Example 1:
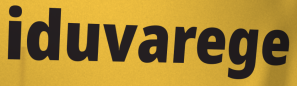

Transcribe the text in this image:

iduvarege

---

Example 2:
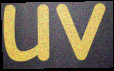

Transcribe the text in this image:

uv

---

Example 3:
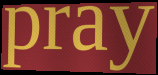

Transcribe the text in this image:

pray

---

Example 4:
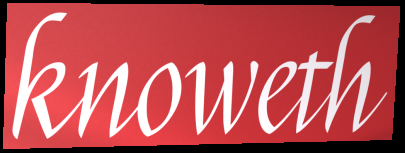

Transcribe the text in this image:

knoweth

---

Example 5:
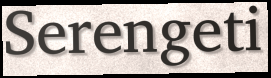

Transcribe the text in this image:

Serengeti